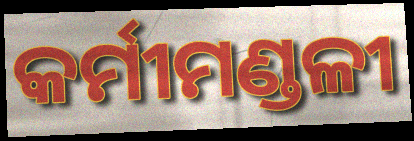
କର୍ମୀମଣ୍ଡଳୀ